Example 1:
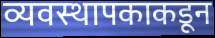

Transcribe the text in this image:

व्यवस्थापकाकडून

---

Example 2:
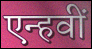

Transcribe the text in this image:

एन्हवीं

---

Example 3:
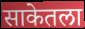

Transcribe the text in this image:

साकेतला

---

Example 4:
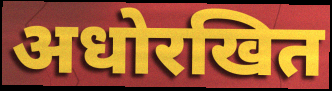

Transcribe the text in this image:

अधोरखित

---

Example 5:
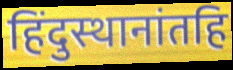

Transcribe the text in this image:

हिंदुस्थानांतहि